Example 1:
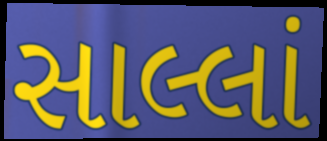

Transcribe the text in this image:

સાલ્લાં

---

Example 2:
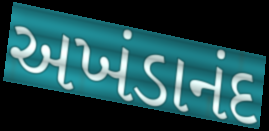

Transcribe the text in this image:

અખંડાનંદ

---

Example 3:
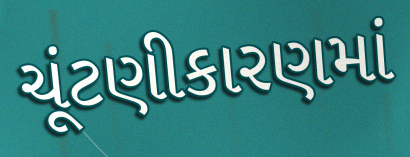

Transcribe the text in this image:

ચૂંટણીકારણમાં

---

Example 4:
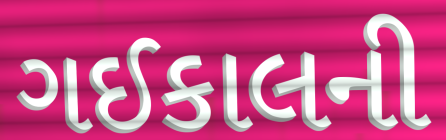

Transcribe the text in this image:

ગઈકાલની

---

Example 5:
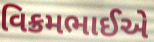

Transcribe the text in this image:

વિક્રમભાઈએ